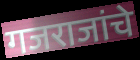
गजराजांचे